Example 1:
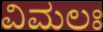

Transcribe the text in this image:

ವಿಮಲಃ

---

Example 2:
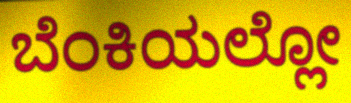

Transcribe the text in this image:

ಬೆಂಕಿಯಲ್ಲೋ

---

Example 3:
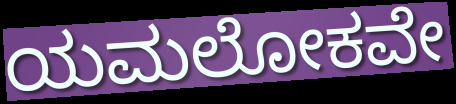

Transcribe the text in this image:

ಯಮಲೋಕವೇ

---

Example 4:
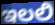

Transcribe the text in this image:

ಇಲಲಿ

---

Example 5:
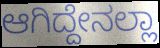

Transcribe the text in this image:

ಆಗಿದ್ದೇನಲ್ಲಾ